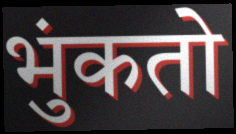
भुंकतो